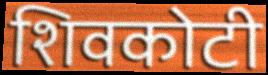
शिवकोटी